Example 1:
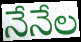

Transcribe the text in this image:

నేనేల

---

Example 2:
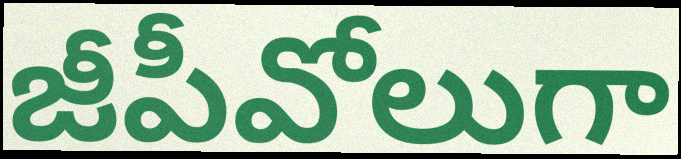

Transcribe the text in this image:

జీపీవోలుగా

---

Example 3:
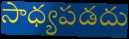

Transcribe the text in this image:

సాధ్యపడదు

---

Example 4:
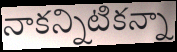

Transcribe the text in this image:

నాకన్నిటికన్నా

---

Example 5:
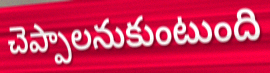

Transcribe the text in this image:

చెప్పాలనుకుంటుంది